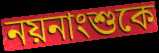
নয়নাংশুকে